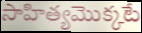
సాహిత్యమొక్కటే